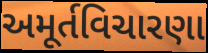
અમૂર્તવિચારણા